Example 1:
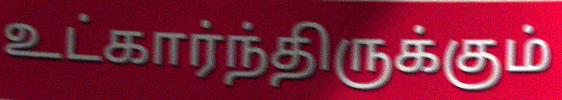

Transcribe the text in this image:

உட்கார்ந்திருக்கும்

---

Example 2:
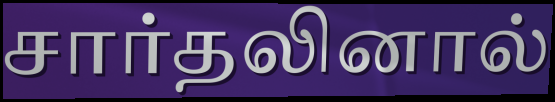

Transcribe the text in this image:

சார்தலினால்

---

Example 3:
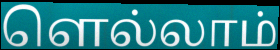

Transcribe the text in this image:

ளெல்லாம்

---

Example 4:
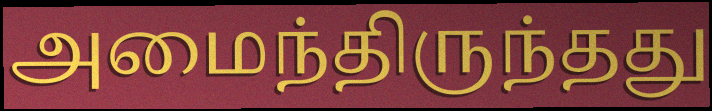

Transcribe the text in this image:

அமைந்திருந்தது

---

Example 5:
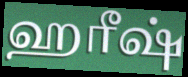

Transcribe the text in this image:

ஹரீஷ்